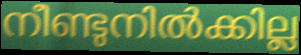
നീണ്ടുനിൽക്കില്ല